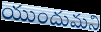
యుందుమని